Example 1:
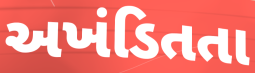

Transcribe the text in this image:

અખંડિતતા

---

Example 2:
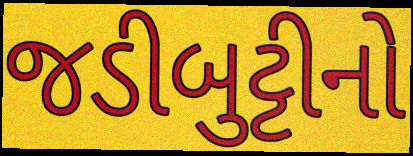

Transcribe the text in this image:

જડીબુટ્ટીનો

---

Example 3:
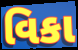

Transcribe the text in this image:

વિકા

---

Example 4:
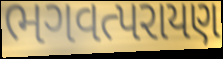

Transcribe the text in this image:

ભગવત્પરાયણ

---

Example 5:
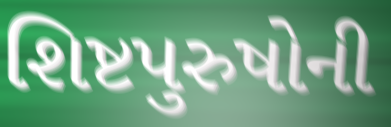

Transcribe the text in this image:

શિષ્ટપુરુષોની